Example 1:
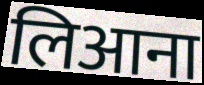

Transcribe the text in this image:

लिआना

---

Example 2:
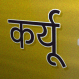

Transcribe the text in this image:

कर्यू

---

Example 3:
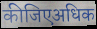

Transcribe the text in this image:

कीजिएअधिक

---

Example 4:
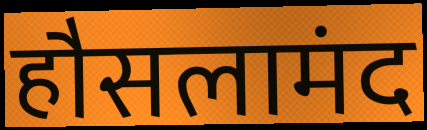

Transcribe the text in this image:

हौसलामंद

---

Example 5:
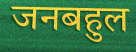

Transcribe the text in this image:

जनबहुल